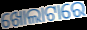
ଖୋଲାଟାରେ